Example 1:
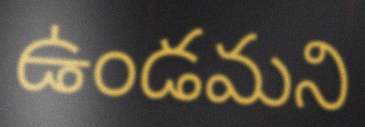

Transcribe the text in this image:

ఉండమని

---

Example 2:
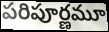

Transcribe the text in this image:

పరిపూర్ణమూ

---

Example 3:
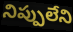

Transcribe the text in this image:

నిప్పులేని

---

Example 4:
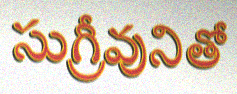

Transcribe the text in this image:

సుగ్రీవునితో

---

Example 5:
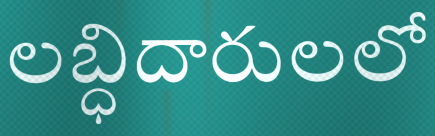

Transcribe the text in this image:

లబ్ధిదారులలో